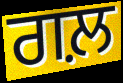
ਗਲ਼